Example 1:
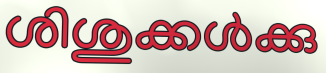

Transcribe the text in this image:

ശിശുക്കൾക്കു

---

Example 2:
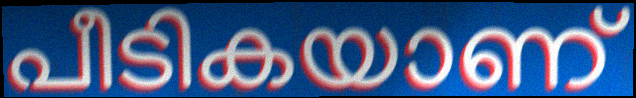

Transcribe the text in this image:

പീടികയാണ്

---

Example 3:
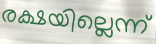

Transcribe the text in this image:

രക്ഷയില്ലെന്ന്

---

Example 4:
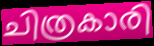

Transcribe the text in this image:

ചിത്രകാരി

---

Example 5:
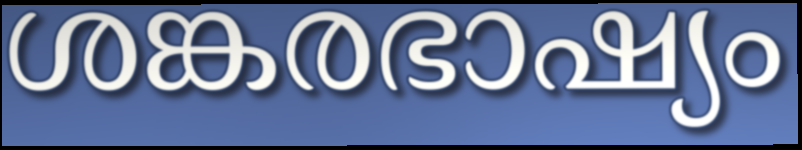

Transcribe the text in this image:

ശങ്കരഭാഷ്യം